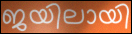
ജയിലായി